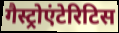
गैस्ट्रोएंटेरिटिस